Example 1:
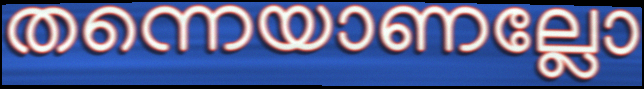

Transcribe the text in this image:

തന്നെയാണല്ലോ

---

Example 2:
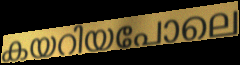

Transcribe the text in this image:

കയറിയപോലെ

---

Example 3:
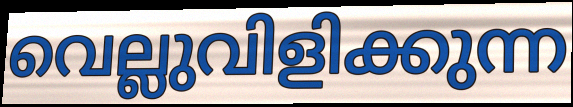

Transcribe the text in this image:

വെല്ലുവിളിക്കുന്ന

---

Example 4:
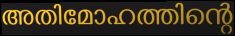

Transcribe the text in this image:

അതിമോഹത്തിന്റെ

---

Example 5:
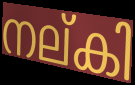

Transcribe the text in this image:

നല്‌കി